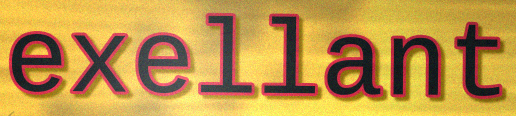
exellant